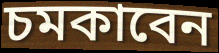
চমকাবেন